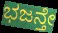
ಭಜನ್ತೇ